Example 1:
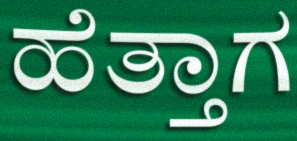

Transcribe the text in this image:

ಹೆತ್ತಾಗ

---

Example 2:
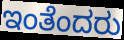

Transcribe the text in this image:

ಇಂತೆಂದರು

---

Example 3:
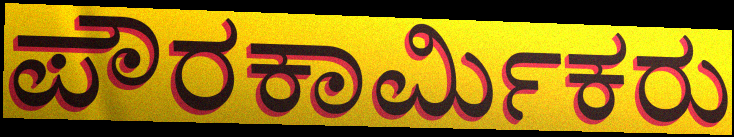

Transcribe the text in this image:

ಪೌರಕಾರ್ಮಿಕರು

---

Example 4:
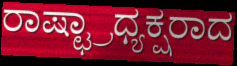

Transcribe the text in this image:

ರಾಷ್ಟ್ರಾಧ್ಯಕ್ಷರಾದ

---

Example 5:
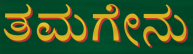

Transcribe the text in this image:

ತಮಗೇನು